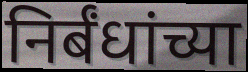
निर्बंधांच्या